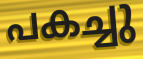
പകച്ചു